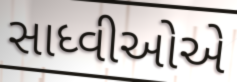
સાધ્વીઓએ